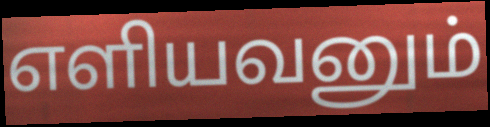
எளியவனும்